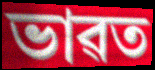
ভাৱত